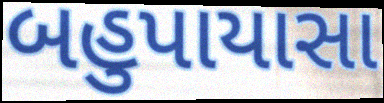
બહુપાયાસા